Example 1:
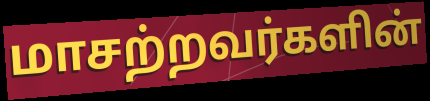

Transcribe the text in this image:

மாசற்றவர்களின்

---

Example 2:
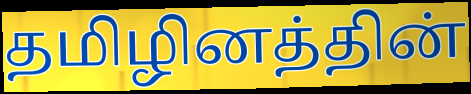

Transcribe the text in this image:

தமிழினத்தின்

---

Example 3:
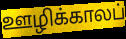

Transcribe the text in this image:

ஊழிக்காலப்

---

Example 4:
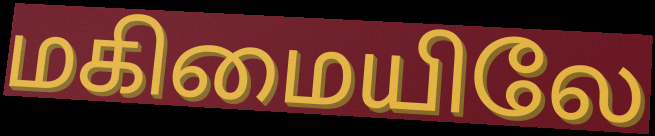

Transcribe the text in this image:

மகிமையிலே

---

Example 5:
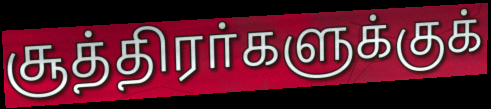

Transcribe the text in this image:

சூத்திரர்களுக்குக்